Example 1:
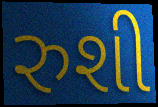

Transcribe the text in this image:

રુશી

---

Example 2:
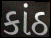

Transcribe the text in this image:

કાંઠ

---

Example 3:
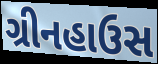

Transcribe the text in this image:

ગ્રીનહાઉસ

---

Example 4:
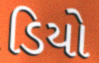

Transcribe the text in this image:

ડિયો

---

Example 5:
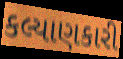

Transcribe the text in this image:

કલ્યાણકારી